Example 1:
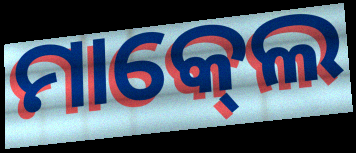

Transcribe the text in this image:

ମାକ୍‍ଲେ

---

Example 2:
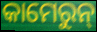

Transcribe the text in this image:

କାମେରୁନ୍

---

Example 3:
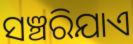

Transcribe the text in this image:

ସଞ୍ଚରିଯାଏ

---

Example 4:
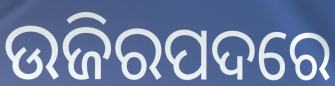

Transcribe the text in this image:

ଉଜିରପଦରେ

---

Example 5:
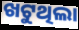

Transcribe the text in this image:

ଖଟୁଥିଲା